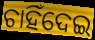
ଚାହିଁଦେଇ